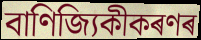
বাণিজ্যিকীকৰণৰ